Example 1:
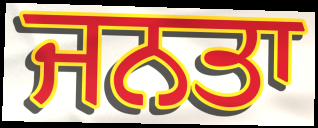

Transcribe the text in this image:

ਜਨਤਾ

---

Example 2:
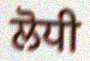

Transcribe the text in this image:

ਲੋਧੀ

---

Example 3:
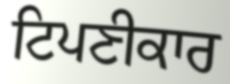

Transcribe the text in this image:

ਟਿਪਣੀਕਾਰ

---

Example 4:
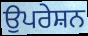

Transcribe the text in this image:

ਉਪਰੇਸ਼ਨ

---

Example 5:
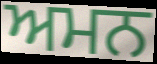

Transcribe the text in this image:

ਅਮਨ